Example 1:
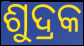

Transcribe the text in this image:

ଶୁଦ୍ରକ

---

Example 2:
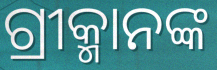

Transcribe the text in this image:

ଗ୍ରୀକ୍ମାନଙ୍କ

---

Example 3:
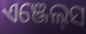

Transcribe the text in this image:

ଏଞ୍ଜେଲ୍‍ସ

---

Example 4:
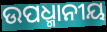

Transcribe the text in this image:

ଉପଧ୍ମାନୀୟ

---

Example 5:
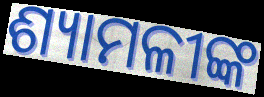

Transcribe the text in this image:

ଶ୍ୟାମଳୀଙ୍କ